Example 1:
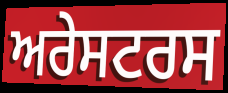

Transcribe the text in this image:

ਅਰੇਸਟਰਸ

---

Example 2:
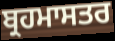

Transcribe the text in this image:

ਬ੍ਰਹਮਾਸਤਰ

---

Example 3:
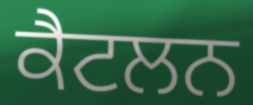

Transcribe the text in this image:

ਕੈਟਲਨ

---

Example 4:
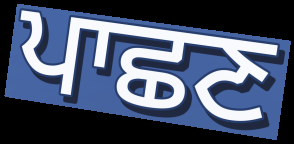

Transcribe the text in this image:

ਪਾਛਣ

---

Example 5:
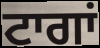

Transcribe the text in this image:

ਟਾਗਾਂ